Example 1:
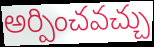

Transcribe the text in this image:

అర్పించవచ్చు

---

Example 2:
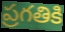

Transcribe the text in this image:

ప్రగతికి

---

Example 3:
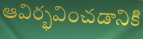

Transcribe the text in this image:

ఆవిర్భవించడానికి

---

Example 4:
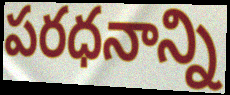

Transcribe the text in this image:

పరధనాన్ని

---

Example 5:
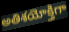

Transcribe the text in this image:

అతిశయోక్తిగా